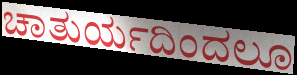
ಚಾತುರ್ಯದಿಂದಲೂ